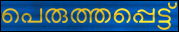
പെരുത്തപ്പെട്ട്